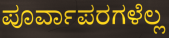
ಪೂರ್ವಾಪರಗಳೆಲ್ಲ